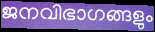
ജനവിഭാഗങ്ങളും